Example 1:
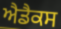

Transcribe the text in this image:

ਐਡੈਕਸ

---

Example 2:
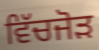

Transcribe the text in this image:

ਵਿੱਚਜੋੜ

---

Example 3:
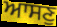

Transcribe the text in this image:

ਆਸਣੁ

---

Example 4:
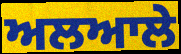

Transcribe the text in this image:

ਅਲਆਲੇ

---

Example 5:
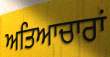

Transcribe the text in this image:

ਅਤਿਆਚਾਰਾਂ